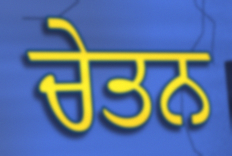
ਚੇਤਨ